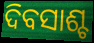
ଦିବସାଶ୍ଚ